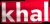
khal